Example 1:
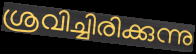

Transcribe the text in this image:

ശ്രവിച്ചിരിക്കുന്നു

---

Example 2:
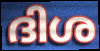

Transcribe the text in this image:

ദിശ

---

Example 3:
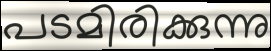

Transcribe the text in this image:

പടമിരിക്കുന്നു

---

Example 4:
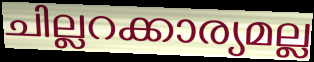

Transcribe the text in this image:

ചില്ലറക്കാര്യമല്ല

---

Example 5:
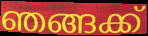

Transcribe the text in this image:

ഞങ്ങക്ക്